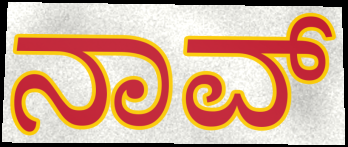
ನಾವ್